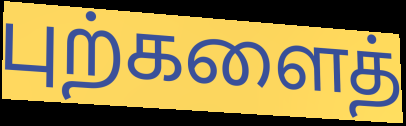
புற்களைத்